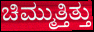
ಚಿಮ್ಮುತ್ತಿತ್ತು